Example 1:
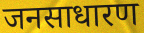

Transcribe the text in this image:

जनसाधारण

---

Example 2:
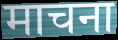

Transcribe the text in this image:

माचना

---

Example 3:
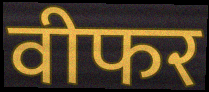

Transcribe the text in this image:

वीफर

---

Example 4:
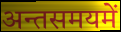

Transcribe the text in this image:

अन्तसमयमें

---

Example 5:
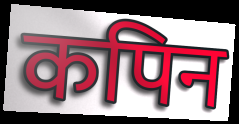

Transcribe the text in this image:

कपिन